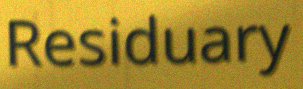
Residuary